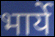
भार्ये